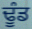
ਢੂੰਡ